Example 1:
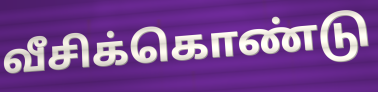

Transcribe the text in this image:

வீசிக்கொண்டு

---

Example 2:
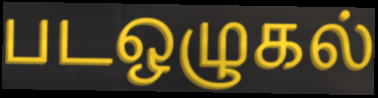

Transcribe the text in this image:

படஒழுகல்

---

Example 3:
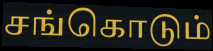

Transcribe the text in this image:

சங்கொடும்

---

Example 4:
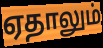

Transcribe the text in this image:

ஏதாலும்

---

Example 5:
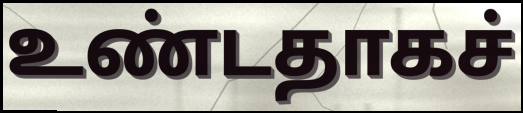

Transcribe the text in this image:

உண்டதாகச்